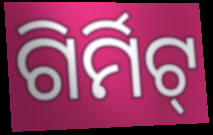
ଗିର୍ମିଟ୍